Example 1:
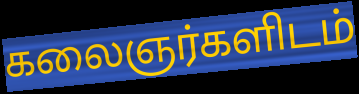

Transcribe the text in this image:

கலைஞர்களிடம்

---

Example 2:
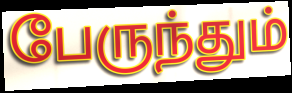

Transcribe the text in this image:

பேருந்தும்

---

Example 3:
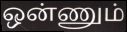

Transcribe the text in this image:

ஒன்ணும்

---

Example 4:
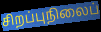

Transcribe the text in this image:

சிறப்புநிலைப்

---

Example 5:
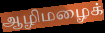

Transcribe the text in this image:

ஆழிமழைக்